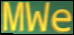
MWe